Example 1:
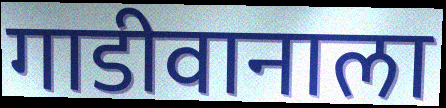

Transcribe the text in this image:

गाडीवानाला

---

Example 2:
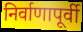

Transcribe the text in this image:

निर्वाणापूर्वी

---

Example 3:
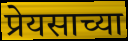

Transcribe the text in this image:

प्रेयसाच्या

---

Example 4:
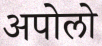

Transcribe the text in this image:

अपोलो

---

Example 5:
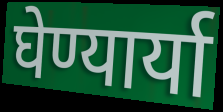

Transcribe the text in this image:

घेण्यार्या